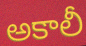
అకాలీ